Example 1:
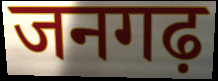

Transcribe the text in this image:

जनगढ़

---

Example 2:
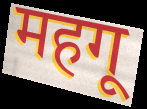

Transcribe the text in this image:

महगू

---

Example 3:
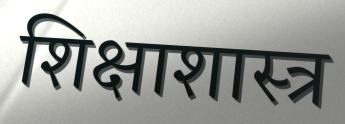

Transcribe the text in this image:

शिक्षाशास्त्र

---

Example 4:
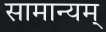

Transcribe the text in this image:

सामान्यम्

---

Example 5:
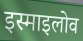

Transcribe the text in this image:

इस्माइलोव